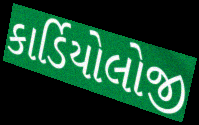
કાર્ડિયોલોજી